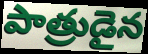
పాత్రుడైన